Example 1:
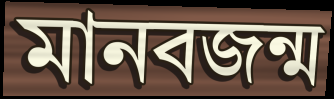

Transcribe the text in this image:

মানবজন্ম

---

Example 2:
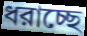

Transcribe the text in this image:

ধরাচ্ছে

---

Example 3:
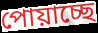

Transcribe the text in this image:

পোয়াচ্ছে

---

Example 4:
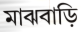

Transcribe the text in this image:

মাঝবাড়ি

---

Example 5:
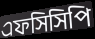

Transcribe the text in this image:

এফসিসিপি